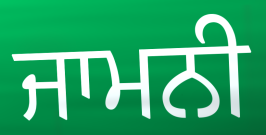
ਜਾਮਨੀ